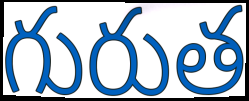
గురుత